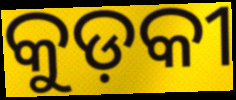
କୁଡ଼କୀ